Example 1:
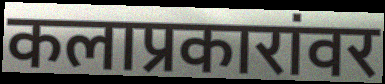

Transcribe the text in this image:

कलाप्रकारांवर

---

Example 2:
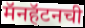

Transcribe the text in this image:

मॅनहॅटनची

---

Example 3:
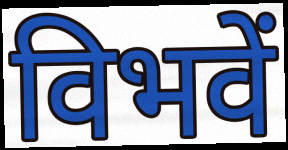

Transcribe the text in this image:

विभवें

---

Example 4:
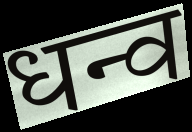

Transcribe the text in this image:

धन्व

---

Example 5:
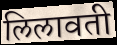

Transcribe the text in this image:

लिलावती